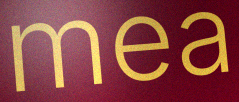
mea